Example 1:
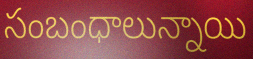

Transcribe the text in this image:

సంబంధాలున్నాయి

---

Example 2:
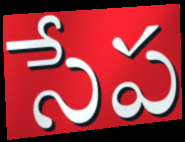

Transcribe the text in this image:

సేప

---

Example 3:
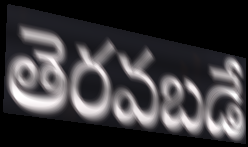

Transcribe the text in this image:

తెరవబడే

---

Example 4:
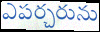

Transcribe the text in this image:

ఎపర్చరును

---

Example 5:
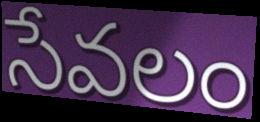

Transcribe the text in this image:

సేవలం